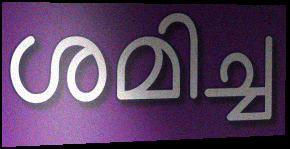
ശമിച്ച